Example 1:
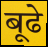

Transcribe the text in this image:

बूढे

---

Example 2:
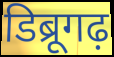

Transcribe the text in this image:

डिब्रूगढ़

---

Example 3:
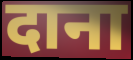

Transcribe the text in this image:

दाना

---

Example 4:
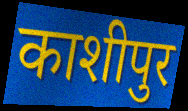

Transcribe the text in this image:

काशीपुर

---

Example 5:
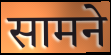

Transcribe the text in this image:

सामने